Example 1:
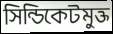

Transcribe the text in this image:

সিন্ডিকেটমুক্ত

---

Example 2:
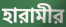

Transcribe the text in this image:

হারামীর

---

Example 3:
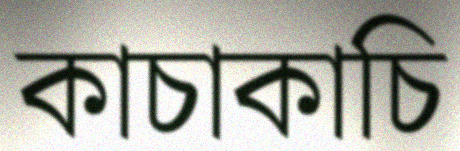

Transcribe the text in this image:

কাচাকাচি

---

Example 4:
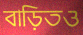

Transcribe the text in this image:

বাড়িতও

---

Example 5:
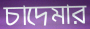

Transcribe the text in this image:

চাদেমার